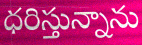
ధరిస్తున్నాను